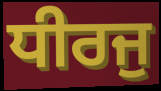
ਧੀਰਜੁ